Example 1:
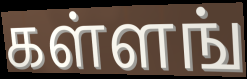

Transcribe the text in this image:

கள்ளங்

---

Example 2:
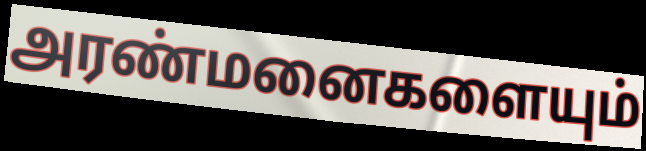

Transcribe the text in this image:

அரண்மனைகளையும்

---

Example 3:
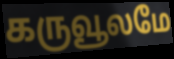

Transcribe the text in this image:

கருவூலமே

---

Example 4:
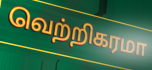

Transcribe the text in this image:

வெற்றிகரமா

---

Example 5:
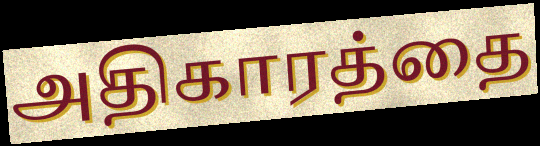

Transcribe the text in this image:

அதிகாரத்தை